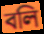
বলি